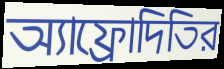
অ্যাফ্রোদিতির